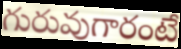
గురువుగారంటే